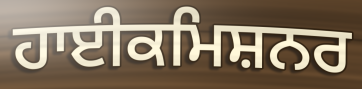
ਹਾਈਕਮਿਸ਼ਨਰ